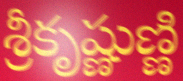
శ్రీకృష్ణుణ్ణి